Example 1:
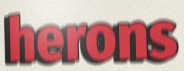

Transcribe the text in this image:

herons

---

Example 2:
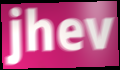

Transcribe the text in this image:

jhev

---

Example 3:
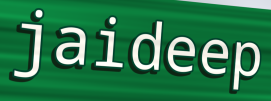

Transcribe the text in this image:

jaideep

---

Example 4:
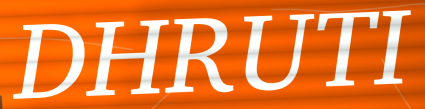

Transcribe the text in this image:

DHRUTI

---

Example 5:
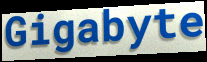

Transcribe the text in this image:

Gigabyte